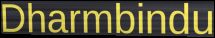
Dharmbindu